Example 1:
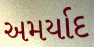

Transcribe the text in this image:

અમર્યાદ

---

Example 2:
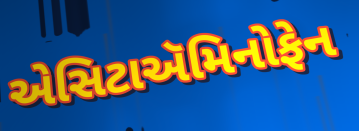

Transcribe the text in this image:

એસિટાઍમિનોફેન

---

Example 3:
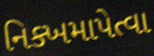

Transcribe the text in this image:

નિક્ખમાપેત્વા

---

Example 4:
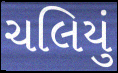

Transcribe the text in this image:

ચલિયું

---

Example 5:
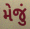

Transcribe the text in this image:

મેજું